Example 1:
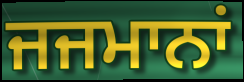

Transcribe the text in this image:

ਜਜਮਾਨਾਂ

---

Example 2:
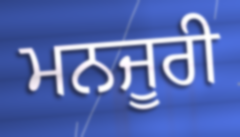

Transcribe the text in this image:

ਮਨਜੂਰੀ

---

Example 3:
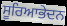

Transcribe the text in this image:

ਸੂਰਿਆਭੇਦਨ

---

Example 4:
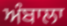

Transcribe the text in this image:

ਅੰਬਾਲਾ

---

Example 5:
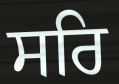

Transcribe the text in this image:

ਸਰਿ